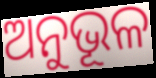
ଅନୁଭୂଳ